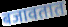
बजावतात